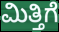
ಮಿತ್ತಿಗೆ